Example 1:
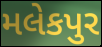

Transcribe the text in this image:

મલેકપુર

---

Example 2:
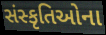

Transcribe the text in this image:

સંસ્કૃતિઓના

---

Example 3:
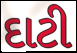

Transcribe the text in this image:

દાટી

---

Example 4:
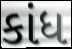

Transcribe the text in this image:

કાંધ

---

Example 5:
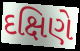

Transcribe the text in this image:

દક્ષિણે